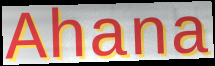
Ahana